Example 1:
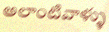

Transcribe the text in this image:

అలాంటివాళ్ళు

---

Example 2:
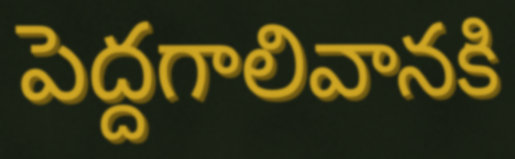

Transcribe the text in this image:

పెద్దగాలివానకి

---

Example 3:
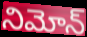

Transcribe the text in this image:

నిమోన్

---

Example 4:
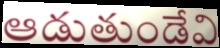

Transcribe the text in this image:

ఆడుతుండేవి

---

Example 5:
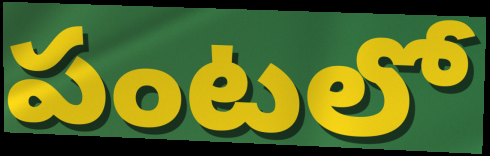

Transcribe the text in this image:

పంటలో